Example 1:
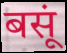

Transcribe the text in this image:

बसूं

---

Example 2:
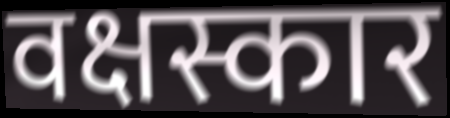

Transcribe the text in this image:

वक्षस्कार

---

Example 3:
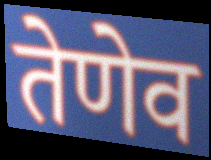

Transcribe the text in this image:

तेणेव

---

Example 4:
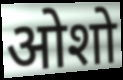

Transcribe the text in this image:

ओशो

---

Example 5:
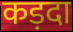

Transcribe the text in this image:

कड़दा